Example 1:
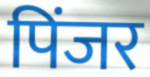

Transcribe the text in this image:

पिंजर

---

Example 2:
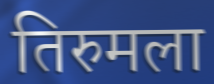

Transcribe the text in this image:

तिरुमला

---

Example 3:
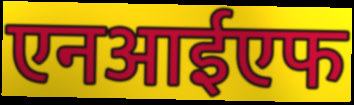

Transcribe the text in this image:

एनआईएफ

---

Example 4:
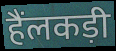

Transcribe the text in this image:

हैंलकड़ी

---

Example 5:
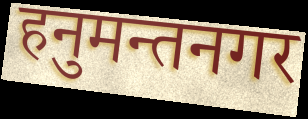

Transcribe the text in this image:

हनुमन्तनगर